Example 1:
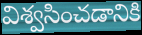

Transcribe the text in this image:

విశ్వసించడానికి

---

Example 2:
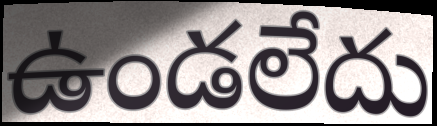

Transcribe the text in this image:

ఉండలేదు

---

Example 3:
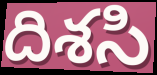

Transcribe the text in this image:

దిశసి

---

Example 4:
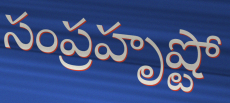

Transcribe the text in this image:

సంప్రహృష్టో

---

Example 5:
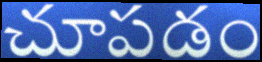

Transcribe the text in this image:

చూపడం